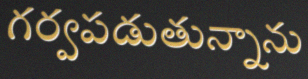
గర్వపడుతున్నాను